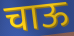
चाऊ